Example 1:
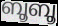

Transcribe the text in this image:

ബൂബൂ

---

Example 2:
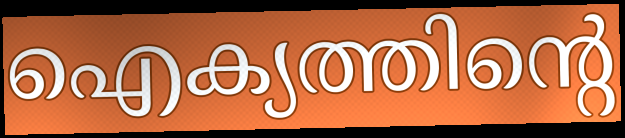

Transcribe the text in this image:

ഐക്യത്തിന്റെ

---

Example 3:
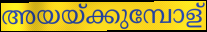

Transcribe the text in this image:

അയയ്ക്കുമ്പോള്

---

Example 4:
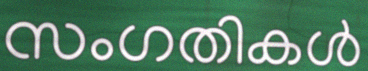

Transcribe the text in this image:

സംഗതികൾ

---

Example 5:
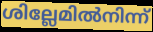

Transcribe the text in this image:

ശില്ലേമിൽനിന്ന്